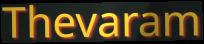
Thevaram